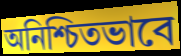
অনিশ্চিতভাবে